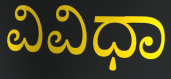
ವಿವಿಧಾ